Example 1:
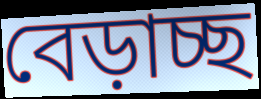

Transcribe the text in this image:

বেড়াচ্ছ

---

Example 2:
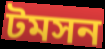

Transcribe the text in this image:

টমসন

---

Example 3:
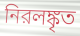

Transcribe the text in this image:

নিরলঙ্কৃত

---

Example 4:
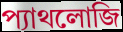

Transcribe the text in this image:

প্যাথলোজি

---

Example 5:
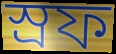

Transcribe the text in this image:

স্রফ